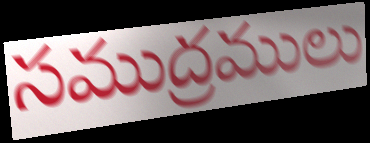
సముద్రములు